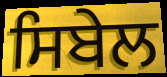
ਸਿਬੇਲ